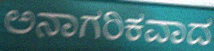
ಅನಾಗರಿಕವಾದ